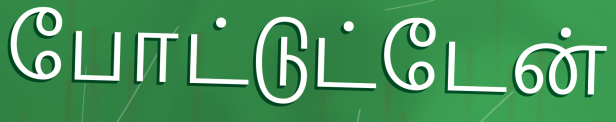
போட்டுட்டேன்